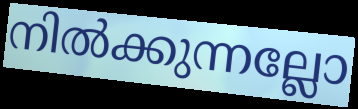
നിൽക്കുന്നല്ലോ